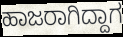
ಹಾಜರಾಗಿದ್ದಾಗ